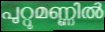
പുറ്റുമണ്ണിൽ